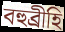
বহুব্ৰীহি